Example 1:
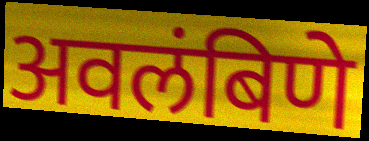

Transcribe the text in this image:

अवलंबिणे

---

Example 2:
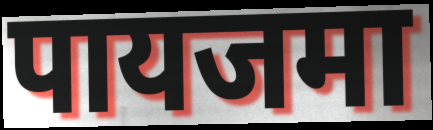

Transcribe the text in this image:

पायजमा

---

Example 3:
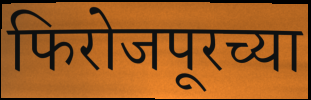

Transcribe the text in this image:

फिरोजपूरच्या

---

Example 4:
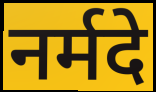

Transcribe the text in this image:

नर्मदे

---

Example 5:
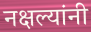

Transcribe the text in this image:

नक्षल्यांनी